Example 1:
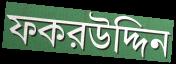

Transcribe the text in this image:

ফকরউদ্দিন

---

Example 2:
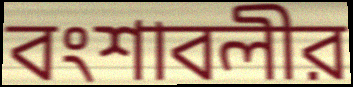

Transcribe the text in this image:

বংশাবলীর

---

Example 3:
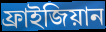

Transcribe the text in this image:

ফ্রাইজিয়ান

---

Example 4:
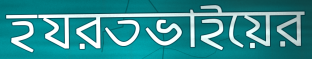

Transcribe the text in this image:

হযরতভাইয়ের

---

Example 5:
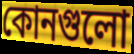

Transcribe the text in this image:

কোনগুলো